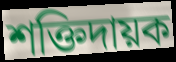
শক্তিদায়ক